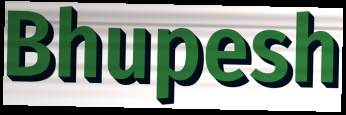
Bhupesh